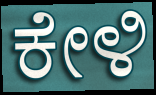
ಕೇಳಿ